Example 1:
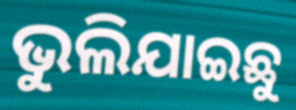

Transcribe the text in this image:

ଭୁଲିଯାଇଛୁ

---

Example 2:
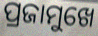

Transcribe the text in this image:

ପ୍ରଜାମୁଖେ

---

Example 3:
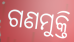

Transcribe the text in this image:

ଗଣମୁକ୍ତି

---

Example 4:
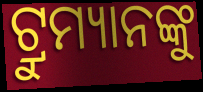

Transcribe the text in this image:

ଟ୍ରୁମ୍ୟାନଙ୍କୁ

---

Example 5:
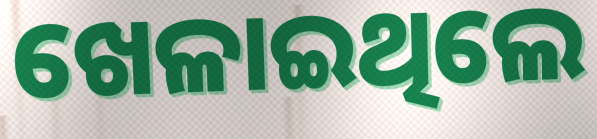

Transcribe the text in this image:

ଖେଳାଇଥିଲେ